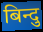
बिन्दु